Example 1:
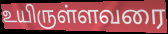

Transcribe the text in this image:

உயிருள்ளவரை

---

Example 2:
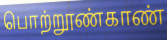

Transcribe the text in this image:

பொற்றூண்காண்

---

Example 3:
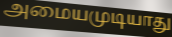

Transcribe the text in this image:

அமையமுடியாது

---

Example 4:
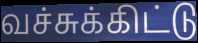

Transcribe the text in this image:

வச்சுக்கிட்டு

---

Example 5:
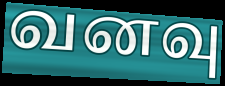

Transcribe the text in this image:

வனவு